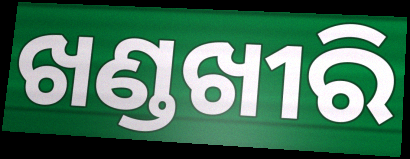
ଖଣ୍ଡଖୀରି